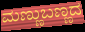
ಮಣ್ಣುಬಣ್ಣದ